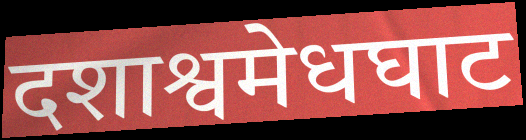
दशाश्वमेधघाट